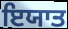
ਇਯਾਤ